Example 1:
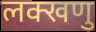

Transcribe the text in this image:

लक्खणु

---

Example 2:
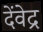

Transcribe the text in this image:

देंवेद्र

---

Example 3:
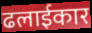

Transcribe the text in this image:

ढलाईकार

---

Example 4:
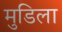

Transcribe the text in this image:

मुडिला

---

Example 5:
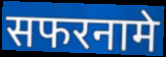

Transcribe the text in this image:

सफरनामे